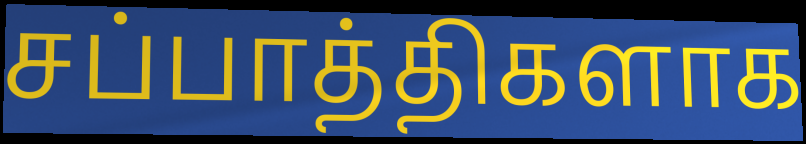
சப்பாத்திகளாக